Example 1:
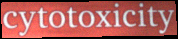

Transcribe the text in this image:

cytotoxicity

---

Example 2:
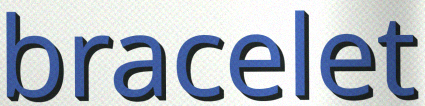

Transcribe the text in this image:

bracelet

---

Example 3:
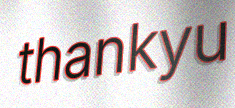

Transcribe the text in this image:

thankyu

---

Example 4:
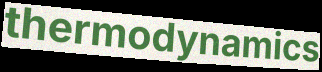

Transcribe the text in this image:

thermodynamics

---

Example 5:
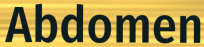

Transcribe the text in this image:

Abdomen